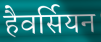
हैवर्सियन